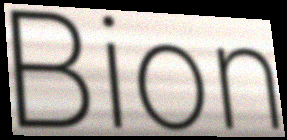
Bion